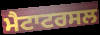
ਮੈਟਾਟਰਸਲ